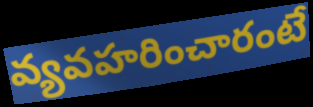
వ్యవహరించారంటే